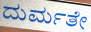
ದುರ್ಮತೇ